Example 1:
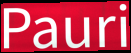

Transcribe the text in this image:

Pauri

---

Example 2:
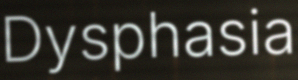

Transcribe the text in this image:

Dysphasia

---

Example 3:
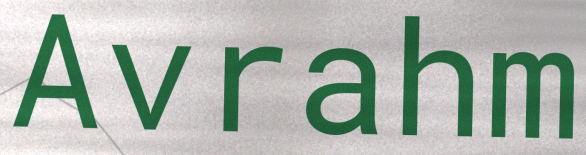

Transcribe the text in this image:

Avrahm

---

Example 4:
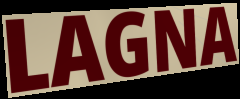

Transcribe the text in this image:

LAGNA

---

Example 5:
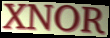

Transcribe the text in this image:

XNOR